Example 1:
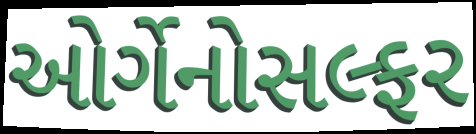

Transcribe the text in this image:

ઓર્ગેનોસલ્ફર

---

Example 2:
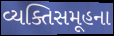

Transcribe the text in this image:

વ્યક્તિસમૂહના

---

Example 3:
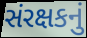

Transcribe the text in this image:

સંરક્ષકનું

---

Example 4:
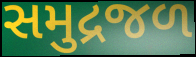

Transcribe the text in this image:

સમુદ્રજળ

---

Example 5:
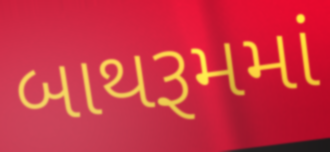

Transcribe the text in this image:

બાથરૂમમાં